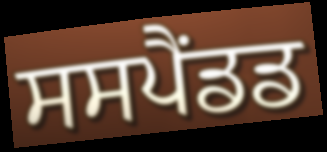
ਸਸਪੈਂਡਡ